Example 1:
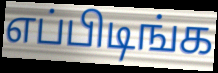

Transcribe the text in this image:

எப்பிடிங்க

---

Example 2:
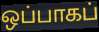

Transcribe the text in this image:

ஒப்பாகப்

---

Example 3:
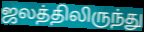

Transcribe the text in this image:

ஜலத்திலிருந்து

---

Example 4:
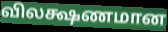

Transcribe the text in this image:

விலக்ஷணமான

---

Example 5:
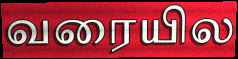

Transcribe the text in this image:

வரையில